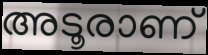
അടൂരാണ്